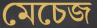
মেচেজ